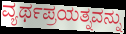
ವ್ಯರ್ಥಪ್ರಯತ್ನವನ್ನು